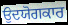
ਉਦਯੋਗਕਾਰ